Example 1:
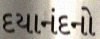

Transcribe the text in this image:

દયાનંદનો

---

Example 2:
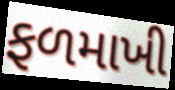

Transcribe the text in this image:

ફળમાખી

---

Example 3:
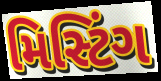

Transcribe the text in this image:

મિસ્ટિંગ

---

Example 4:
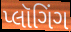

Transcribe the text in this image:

પ્લૉગિંગ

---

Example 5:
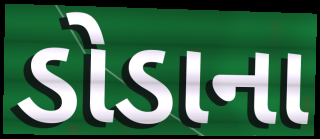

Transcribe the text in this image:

ડોડાના